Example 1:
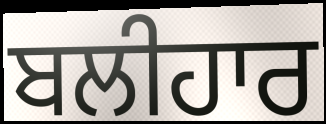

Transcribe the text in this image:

ਬਲੀਹਾਰ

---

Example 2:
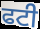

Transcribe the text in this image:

ਫਟੀ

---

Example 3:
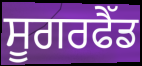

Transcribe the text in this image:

ਸੂਗਰਫੈੱਡ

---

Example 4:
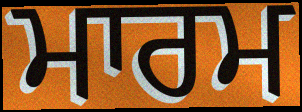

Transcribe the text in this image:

ਮਾਰਮ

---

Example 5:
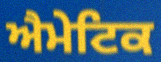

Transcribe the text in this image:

ਐਮੇਟਿਕ